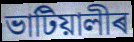
ভাটিয়ালীৰ